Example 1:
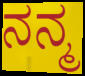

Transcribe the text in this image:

ನನ್ಮ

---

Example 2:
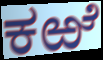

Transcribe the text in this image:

ಕಱೆ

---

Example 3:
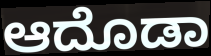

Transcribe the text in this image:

ಆದೊಡಾ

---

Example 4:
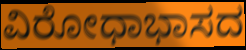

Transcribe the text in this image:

ವಿರೋಧಾಭಾಸದ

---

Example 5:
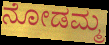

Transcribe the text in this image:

ನೋಡಮ್ಮ